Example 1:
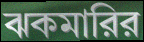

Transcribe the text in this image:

ঝকমারির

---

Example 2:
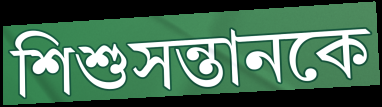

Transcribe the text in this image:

শিশুসন্তানকে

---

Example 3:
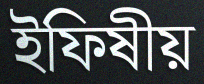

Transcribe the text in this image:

ইফিষীয়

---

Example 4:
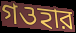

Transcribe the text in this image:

গওহার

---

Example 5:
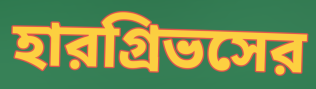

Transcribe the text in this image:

হারগ্রিভসের